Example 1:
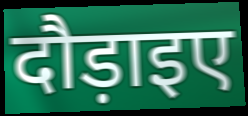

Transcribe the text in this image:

दौड़ाइए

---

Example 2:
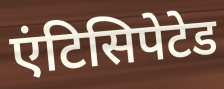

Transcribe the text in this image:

एंटिसिपेटेड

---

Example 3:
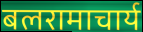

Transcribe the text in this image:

बलरामाचार्य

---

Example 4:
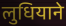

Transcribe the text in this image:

लुधियाने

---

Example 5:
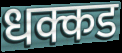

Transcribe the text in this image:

धक्कड